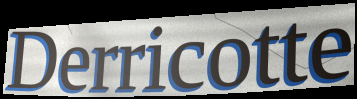
Derricotte